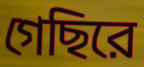
গেছিরে